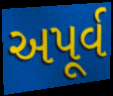
અપૂર્વ